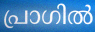
പ്രാഗിൽ